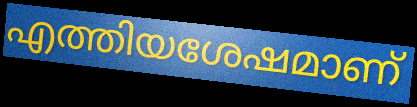
എത്തിയശേഷമാണ്